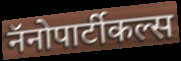
नॅनोपार्टीकल्स